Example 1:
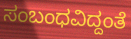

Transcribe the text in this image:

ಸಂಬಂಧವಿದ್ದಂತೆ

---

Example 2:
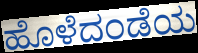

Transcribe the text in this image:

ಹೊಳೆದಂಡೆಯ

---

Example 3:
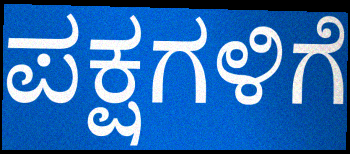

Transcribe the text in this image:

ಪಕ್ಷಗಳಿಗೆ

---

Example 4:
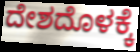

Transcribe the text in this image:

ದೇಶದೊಳಕ್ಕೆ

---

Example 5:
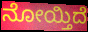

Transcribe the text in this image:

ನೋಯ್ತಿದೆ